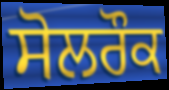
ਸੋਲਰੌਕ